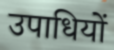
उपाधियों